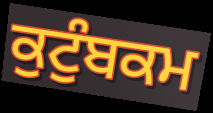
ਕੁਟੁੰਬਕਮ